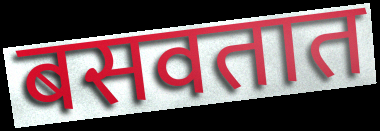
बसवतात